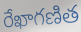
రేఖాగణిత